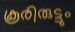
കൂരിരുട്ടും